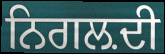
ਨਿਗਲ਼ਦੀ